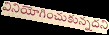
వినియోగించుకున్నదని